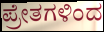
ಪ್ರೇತಗಳಿಂದ